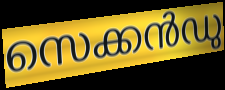
സെക്കൻഡു